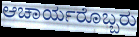
ಆಚಾರ್ಯರೊಬ್ಬರು